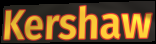
Kershaw